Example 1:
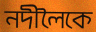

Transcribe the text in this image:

নদীলৈকে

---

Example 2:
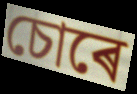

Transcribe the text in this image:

চোৰে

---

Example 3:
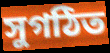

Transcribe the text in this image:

সুগঠিত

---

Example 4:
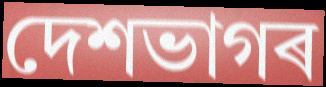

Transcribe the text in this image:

দেশভাগৰ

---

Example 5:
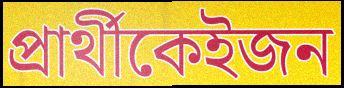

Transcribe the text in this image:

প্ৰাৰ্থীকেইজন